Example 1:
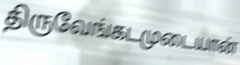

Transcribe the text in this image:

திருவேங்கடமுடையான்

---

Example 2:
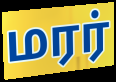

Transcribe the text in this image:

மரர்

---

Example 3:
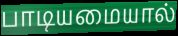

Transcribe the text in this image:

பாடியமையால்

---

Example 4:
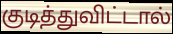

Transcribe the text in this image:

குடித்துவிட்டால்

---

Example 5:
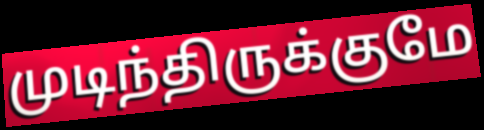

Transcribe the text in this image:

முடிந்திருக்குமே